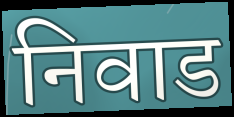
निवाड